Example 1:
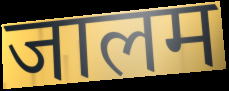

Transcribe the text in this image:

जालम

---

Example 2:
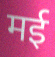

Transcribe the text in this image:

मई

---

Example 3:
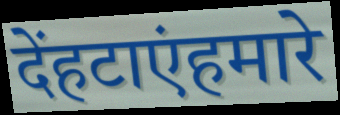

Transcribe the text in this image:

देंहटाएंहमारे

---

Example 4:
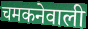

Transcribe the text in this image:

चमकनेवाली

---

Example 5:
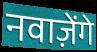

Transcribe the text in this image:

नवाज़ेंगे